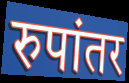
रुपांतर